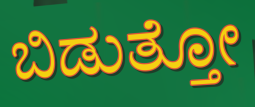
ಬಿಡುತ್ತೋ